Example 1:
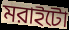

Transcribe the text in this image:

মরাইটো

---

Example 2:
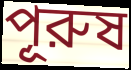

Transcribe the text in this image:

পূরুষ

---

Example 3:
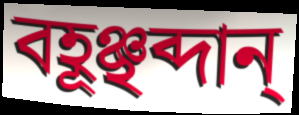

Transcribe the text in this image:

বহূঞ্ছব্দান্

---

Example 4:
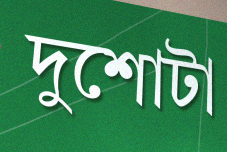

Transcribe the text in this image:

দুশোটা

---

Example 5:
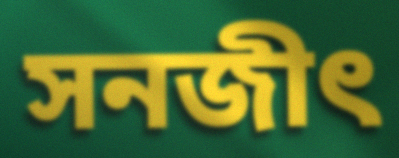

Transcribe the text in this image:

সনজীৎ